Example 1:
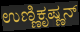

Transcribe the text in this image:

ಉಣ್ಣಿಕೃಷ್ಣನ್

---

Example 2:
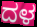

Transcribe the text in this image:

ದಳ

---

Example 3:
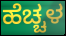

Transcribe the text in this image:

ಹೆಚ್ಚಳ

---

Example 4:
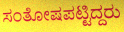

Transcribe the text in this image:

ಸಂತೋಷಪಟ್ಟಿದ್ದರು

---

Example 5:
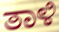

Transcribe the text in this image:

ತಾಳಿ